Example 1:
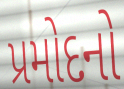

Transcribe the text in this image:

પ્રમોદનો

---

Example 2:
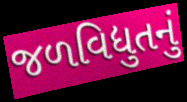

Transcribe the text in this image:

જળવિદ્યુતનું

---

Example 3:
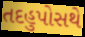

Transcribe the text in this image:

તદહુપોસથે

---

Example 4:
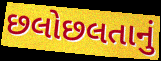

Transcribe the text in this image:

છલોછલતાનું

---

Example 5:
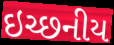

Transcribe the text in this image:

ઇચ્છનીય